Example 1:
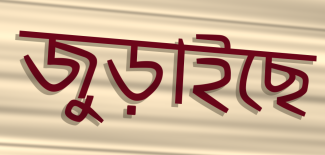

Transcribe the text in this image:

জুড়াইছে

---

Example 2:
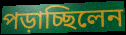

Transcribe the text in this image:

পড়াচ্ছিলেন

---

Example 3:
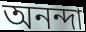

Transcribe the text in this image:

অনন্দা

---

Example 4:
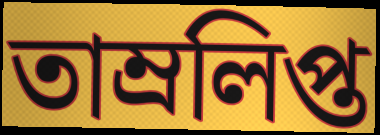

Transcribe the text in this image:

তাম্রলিপ্ত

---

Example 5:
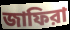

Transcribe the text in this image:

জাফিরা